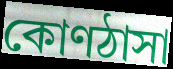
কোণঠাসা